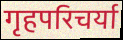
गृहपरिचर्या